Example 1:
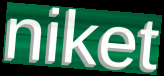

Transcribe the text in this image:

niket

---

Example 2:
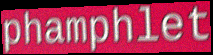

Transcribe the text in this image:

phamphlet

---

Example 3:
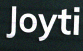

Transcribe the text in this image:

Joyti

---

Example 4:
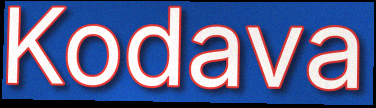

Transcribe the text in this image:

Kodava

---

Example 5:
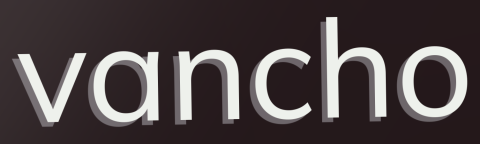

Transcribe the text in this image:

vancho